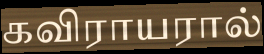
கவிராயரால்